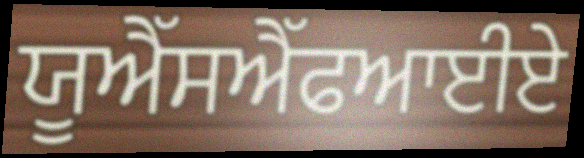
ਯੂਐੱਸਐੱਫਆਈਏ